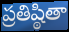
ప్రతిష్ఠితా